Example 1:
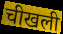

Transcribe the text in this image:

चीखली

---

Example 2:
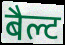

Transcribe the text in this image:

बैल्ट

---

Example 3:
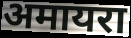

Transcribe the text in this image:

अमायरा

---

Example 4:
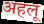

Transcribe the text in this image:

अहलू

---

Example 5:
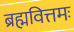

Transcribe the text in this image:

ब्रह्मवित्तमः